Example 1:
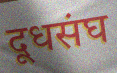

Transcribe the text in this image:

दूधसंघ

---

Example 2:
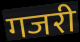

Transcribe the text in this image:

गजरी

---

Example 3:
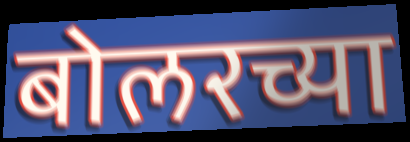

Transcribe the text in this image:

बोलरच्या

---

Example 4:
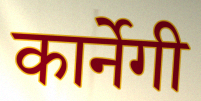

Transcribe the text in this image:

कार्नेगी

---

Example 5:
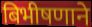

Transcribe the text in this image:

बिभीषणाने